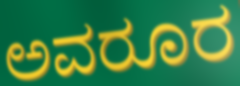
ಅವರೂರ